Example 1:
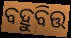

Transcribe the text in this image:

ବହୁବିତ୍ତ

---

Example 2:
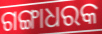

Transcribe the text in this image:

ଗଙ୍ଗାଧରକ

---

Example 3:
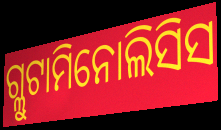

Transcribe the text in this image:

ଗ୍ଲୁଟାମିନୋଲିସିସ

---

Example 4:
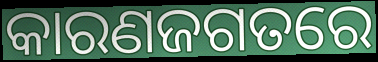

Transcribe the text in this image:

କାରଣଜଗତରେ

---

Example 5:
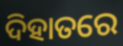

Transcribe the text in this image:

ଦିହାତରେ